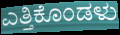
ಎತ್ತಿಕೊಂಡಳು